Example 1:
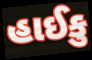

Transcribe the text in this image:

હાઈકુ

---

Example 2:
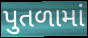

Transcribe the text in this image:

પુતળામાં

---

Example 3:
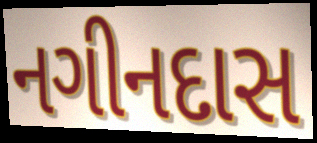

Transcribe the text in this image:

નગીનદાસ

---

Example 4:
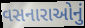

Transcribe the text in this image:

વસનારાઓનું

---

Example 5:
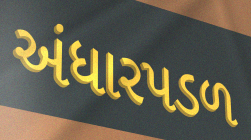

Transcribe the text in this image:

અંધારપડળ